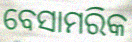
ବେସାମରିକ